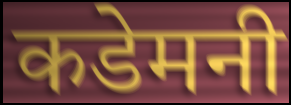
कडेमनी